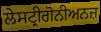
ਲੇਸਟ੍ਰੀਗੋਨੀਅਨਜ਼